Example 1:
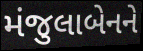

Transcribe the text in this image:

મંજુલાબેનને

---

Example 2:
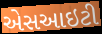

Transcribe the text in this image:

એસઆઇટી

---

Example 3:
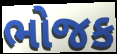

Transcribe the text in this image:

ભોજક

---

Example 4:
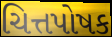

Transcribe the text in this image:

ચિત્તપોષક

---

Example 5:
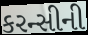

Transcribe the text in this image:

કરન્સીની